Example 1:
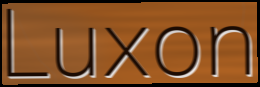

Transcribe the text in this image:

Luxon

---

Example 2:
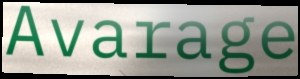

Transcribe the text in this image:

Avarage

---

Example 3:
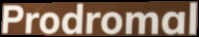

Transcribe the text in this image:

Prodromal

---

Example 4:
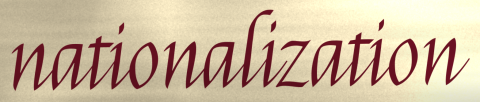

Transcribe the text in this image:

nationalization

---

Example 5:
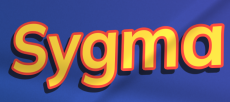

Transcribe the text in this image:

Sygma